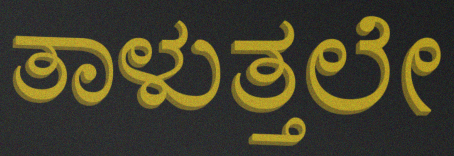
ತಾಳುತ್ತಲೇ